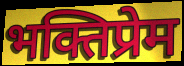
भक्तिप्रेम